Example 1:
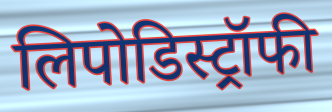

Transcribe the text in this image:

लिपोडिस्ट्रॉफी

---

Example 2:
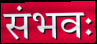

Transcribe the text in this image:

संभवः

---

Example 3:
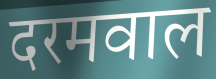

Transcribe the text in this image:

दरमवाल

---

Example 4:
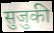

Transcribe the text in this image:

सुजुकी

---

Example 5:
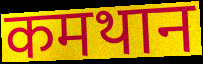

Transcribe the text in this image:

कमथान